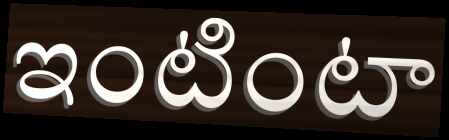
ఇంటింటా